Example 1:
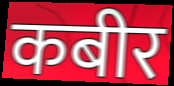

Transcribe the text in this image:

कबीर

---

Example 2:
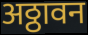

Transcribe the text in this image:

अठ्ठावन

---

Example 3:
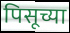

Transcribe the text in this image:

पिसूच्या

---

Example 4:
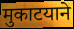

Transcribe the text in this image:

मुकाटयाने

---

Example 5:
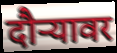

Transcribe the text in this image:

दौऱ्यावर